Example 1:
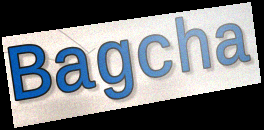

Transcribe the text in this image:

Bagcha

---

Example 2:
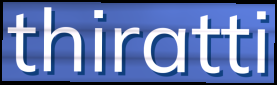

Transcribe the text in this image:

thiratti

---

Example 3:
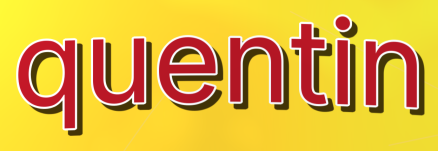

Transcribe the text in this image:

quentin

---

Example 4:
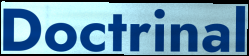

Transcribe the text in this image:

Doctrinal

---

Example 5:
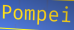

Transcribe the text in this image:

Pompei